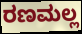
ರಣಮಲ್ಲ